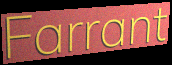
Farrant